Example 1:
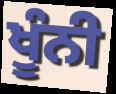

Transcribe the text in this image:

ਖੂੰਨੀ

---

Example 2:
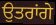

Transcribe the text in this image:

ਉਤਰਾਂਗੇ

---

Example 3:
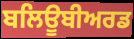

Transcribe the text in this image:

ਬਲਿਊਬੀਅਰਡ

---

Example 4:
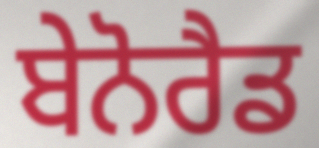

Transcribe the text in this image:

ਬੇਨੋਰੈਡ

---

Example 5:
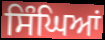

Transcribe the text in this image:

ਸਿੰਘਿਆਂ